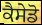
ਕੈਸੇਡੋ